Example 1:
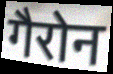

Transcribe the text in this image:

गैरोन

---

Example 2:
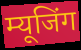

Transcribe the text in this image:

म्यूजिंग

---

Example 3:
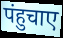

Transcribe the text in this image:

पंहुचाए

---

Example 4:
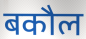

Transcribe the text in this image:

बकौल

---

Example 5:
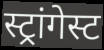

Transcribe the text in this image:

स्ट्रांगेस्ट